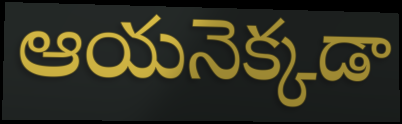
ఆయనెక్కడా